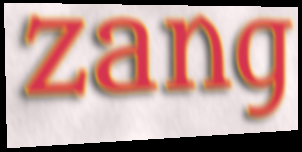
zang